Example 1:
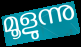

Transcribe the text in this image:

മൂളുന്നു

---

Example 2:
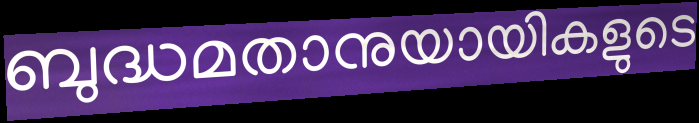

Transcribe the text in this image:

ബുദ്ധമതാനുയായികളുടെ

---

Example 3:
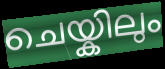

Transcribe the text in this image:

ചെയ്കിലും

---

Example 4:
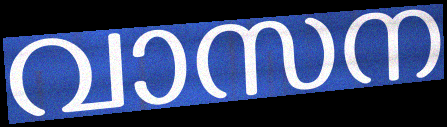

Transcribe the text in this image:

വാസന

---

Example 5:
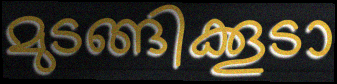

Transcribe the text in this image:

മുടങ്ങിക്കൂടാ